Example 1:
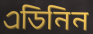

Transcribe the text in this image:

এডিনিন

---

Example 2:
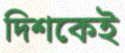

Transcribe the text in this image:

দিশকেই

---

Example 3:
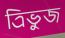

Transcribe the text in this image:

ত্ৰিভুজ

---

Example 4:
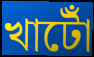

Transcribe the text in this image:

খাটোঁ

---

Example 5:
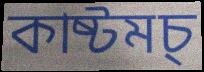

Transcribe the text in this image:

কাষ্টমচ্